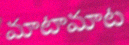
మాటామాట